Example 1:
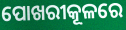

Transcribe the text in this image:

ପୋଖରୀକୂଳରେ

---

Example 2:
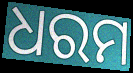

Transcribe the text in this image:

ଧରମ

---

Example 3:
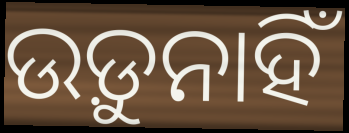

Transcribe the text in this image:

ଉଡ଼ୁନାହିଁ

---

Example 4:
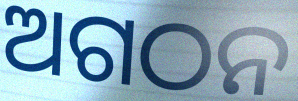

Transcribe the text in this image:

ଅଗଠନ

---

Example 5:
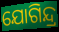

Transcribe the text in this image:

ଯୋଗିନ୍ଦ୍ର